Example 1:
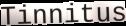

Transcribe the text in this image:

Tinnitus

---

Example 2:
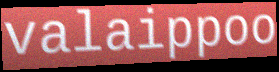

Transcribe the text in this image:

valaippoo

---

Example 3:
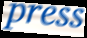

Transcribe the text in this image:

press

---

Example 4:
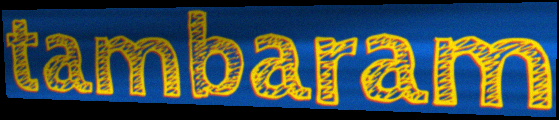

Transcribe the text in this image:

tambaram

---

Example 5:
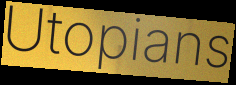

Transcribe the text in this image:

Utopians